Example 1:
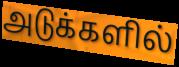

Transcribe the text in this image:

அடுக்களில்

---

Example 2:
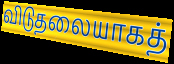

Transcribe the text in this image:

விடுதலையாகத்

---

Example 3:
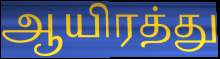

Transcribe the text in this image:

ஆயிரத்து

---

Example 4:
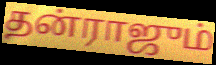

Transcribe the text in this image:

தன்ராஜும்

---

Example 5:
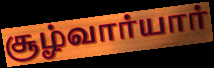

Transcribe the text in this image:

சூழ்வார்யார்